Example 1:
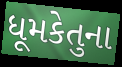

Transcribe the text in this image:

ધૂમકેતુના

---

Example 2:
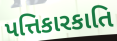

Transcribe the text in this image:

પત્તિકારકાતિ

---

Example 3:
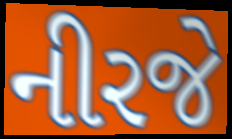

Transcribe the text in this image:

નીરજે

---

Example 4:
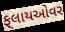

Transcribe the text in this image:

ફ્‌લાયઓવર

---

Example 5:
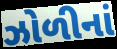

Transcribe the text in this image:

ઝોળીનાં